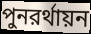
পুনরর্থায়ন